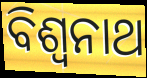
ବିଶ୍ଵନାଥ